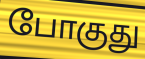
போகுது